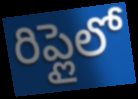
రిప్లైలో